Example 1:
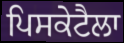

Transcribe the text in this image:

ਪਿਸਕੇਟੈਲਾ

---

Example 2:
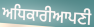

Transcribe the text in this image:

ਅਧਿਕਾਰੀਆਪਣੀ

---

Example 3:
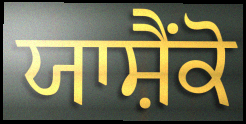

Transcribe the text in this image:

ਯਾਸ਼ੈਂਕੋ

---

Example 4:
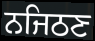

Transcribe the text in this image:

ਨਜਿਠਣ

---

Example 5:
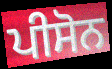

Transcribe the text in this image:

ਪੀਸੋਨ